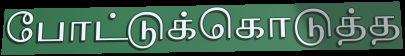
போட்டுக்கொடுத்த